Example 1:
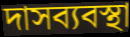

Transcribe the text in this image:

দাসব্যবস্থা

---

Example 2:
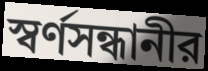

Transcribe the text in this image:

স্বর্ণসন্ধানীর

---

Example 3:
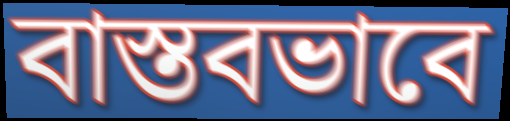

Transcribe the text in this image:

বাস্তবভাবে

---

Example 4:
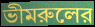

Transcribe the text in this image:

ভীমরুলের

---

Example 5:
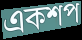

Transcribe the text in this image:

একশপ